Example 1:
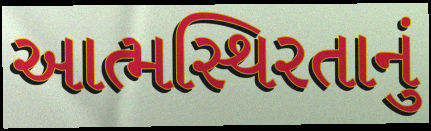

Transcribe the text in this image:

આત્મસ્થિરતાનું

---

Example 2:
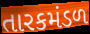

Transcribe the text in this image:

તારકમંડળ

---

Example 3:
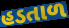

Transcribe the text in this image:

હડતાળ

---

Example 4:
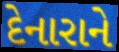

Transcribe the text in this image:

દેનારાને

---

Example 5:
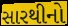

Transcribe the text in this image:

સારથીનો